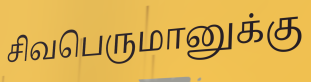
சிவபெருமானுக்கு